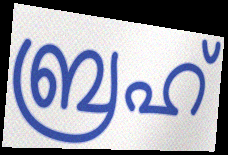
ബ്രഹ്